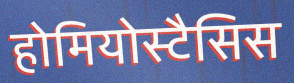
होमियोस्टैसिस